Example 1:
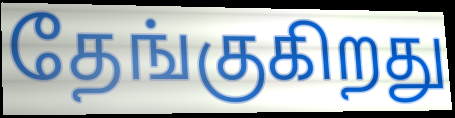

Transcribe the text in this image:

தேங்குகிறது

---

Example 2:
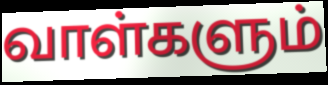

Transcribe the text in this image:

வாள்களும்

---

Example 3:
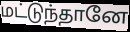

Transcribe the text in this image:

மட்டுந்தானே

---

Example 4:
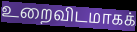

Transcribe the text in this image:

உறைவிடமாகக்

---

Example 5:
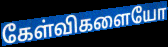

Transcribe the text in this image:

கேள்விகளையோ